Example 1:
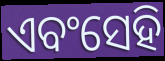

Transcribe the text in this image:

ଏବଂସେହି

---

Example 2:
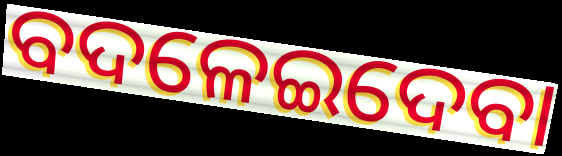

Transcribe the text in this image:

ବଦଳେଇଦେବା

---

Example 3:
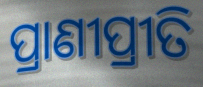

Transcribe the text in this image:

ପ୍ରାଣୀପ୍ରୀତି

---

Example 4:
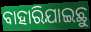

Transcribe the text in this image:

ବାହାରିଯାଇଛୁ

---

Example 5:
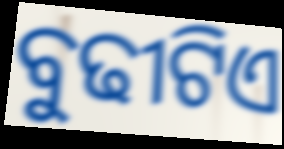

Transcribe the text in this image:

ବୁଢୀଟିଏ